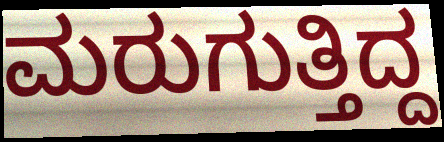
ಮರುಗುತ್ತಿದ್ದ